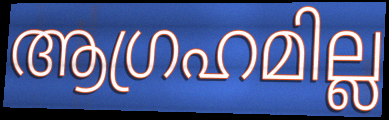
ആഗ്രഹമില്ല